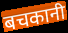
बचकानी